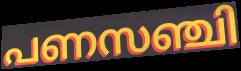
പണസഞ്ചി